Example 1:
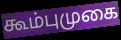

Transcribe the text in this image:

கூம்புமுகை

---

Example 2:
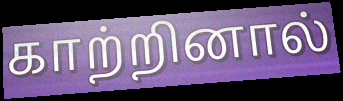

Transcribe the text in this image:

காற்றினால்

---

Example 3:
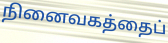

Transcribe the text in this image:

நினைவகத்தைப்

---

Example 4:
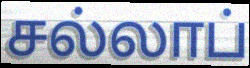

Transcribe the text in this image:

சல்லாப்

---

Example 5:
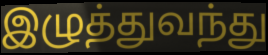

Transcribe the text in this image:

இழுத்துவந்து